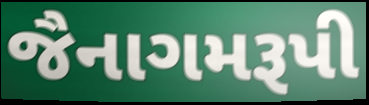
જૈનાગમરૂપી